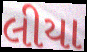
લીયા